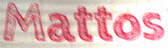
Mattos